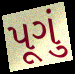
પૂગું